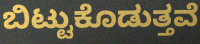
ಬಿಟ್ಟುಕೊಡುತ್ತವೆ